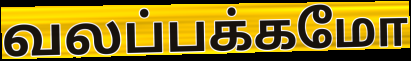
வலப்பக்கமோ